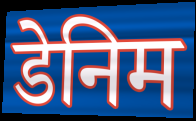
डेनिम